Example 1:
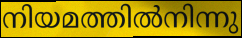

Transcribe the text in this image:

നിയമത്തിൽനിന്നു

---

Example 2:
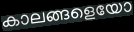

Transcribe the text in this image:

കാലങ്ങളെയോ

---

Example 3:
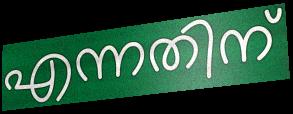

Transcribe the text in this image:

എന്നതിന്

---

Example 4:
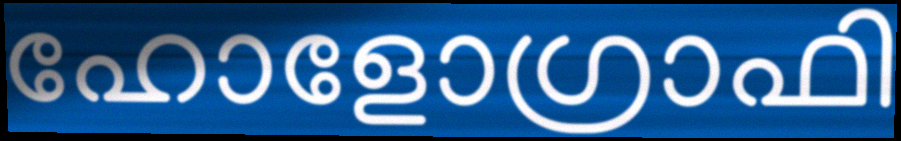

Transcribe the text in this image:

ഹോളോഗ്രാഫി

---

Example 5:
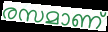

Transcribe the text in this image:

രസമാണ്